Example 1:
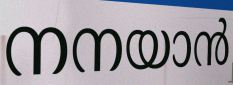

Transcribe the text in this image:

നനയാൻ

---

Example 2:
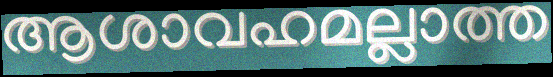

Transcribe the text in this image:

ആശാവഹമല്ലാത്ത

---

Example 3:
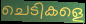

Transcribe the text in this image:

ചെടികളെ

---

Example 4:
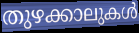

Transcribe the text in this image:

തുഴക്കാലുകൾ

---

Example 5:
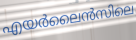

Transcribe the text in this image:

എയർലൈൻസിലെ